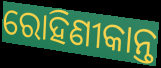
ରୋହିଣୀକାନ୍ତ